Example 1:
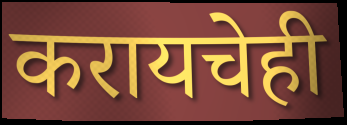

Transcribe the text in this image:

करायचेही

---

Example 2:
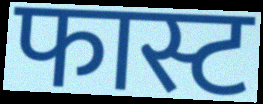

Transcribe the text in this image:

फास्ट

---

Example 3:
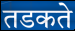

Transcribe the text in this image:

तडकते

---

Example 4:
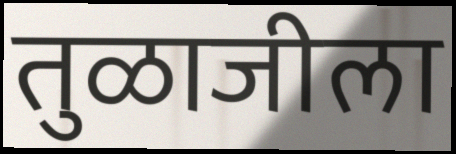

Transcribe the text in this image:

तुळाजीला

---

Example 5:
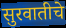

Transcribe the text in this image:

सुरवातीचे